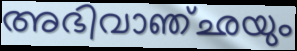
അഭിവാഞ്ഛയും